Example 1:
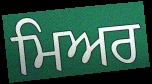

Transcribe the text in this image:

ਮਿਅਰ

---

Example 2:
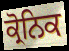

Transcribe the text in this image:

ਕ੍ਰੋਨਿਕ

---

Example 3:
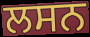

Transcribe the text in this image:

ਲਸਨ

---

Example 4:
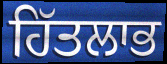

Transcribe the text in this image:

ਹਿੱਤਲਾਭ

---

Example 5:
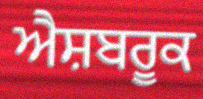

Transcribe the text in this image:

ਐਸ਼ਬਰੂਕ